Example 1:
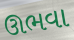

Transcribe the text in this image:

ઊભવા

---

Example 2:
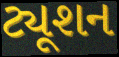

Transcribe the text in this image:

ટ્યૂશન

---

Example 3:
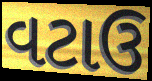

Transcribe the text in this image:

વટાઉ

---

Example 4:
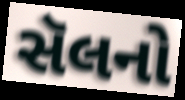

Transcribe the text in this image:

સૅલનો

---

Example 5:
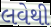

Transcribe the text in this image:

લવેથી